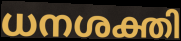
ധനശക്തി